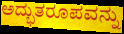
ಅದ್ಭುತರೂಪವನ್ನು